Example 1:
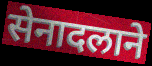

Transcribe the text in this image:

सेनादलाने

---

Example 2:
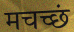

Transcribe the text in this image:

मचच्छं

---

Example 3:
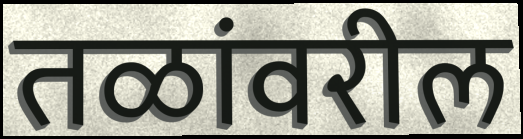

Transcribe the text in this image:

तळांवरील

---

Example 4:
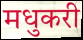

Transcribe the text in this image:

मधुकरी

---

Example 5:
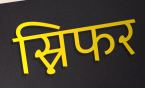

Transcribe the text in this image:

स्निफर